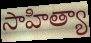
సాహిత్యా